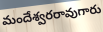
మందేశ్వరరావుగారు